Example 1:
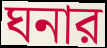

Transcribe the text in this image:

ঘনার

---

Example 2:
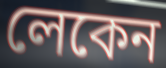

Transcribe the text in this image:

লেকেন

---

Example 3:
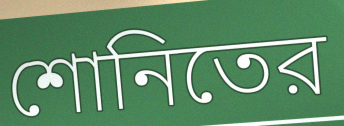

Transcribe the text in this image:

শোনিতের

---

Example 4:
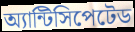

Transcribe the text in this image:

অ্যান্টিসিপেটেড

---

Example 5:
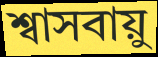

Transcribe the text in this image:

শ্বাসবায়ু